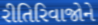
રીતિરિવાજોને